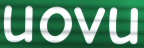
uovu